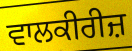
ਵਾਲਕੀਰੀਜ਼